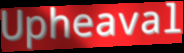
Upheaval